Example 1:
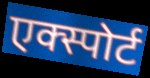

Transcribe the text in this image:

एक्‍स्पोर्ट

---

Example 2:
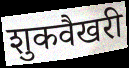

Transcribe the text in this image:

शुकवैखरी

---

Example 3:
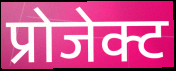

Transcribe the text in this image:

प्रोजेक्ट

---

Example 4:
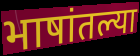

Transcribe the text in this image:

भाषांतल्या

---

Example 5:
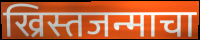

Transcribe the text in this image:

ख्रिस्तजन्माचा